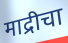
माद्रीचा